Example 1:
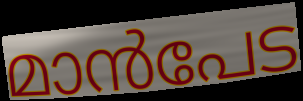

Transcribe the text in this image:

മാൻപേട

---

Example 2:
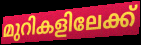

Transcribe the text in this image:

മുറികളിലേക്ക്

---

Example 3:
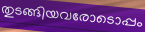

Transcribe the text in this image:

തുടങ്ങിയവരോടൊപ്പം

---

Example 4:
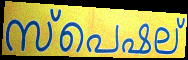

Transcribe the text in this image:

സ്പെഷല്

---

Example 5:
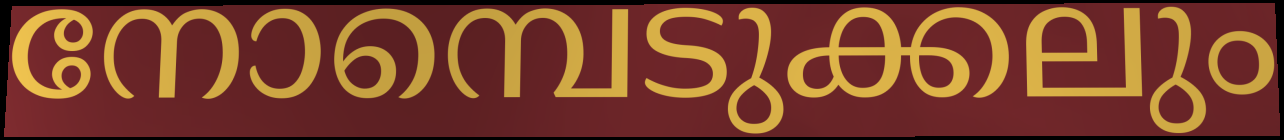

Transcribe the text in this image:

നോമ്പെടുക്കലും